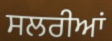
ਸਲਰੀਆਂ